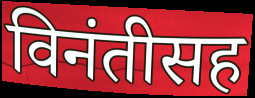
विनंतीसह